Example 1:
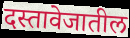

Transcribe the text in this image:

दस्तावेजातील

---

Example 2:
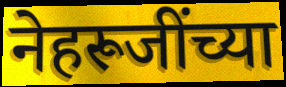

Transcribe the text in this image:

नेहरूजींच्या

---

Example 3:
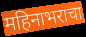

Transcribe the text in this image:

महिनाभराचा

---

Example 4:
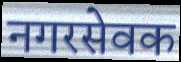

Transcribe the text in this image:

नगरसेवक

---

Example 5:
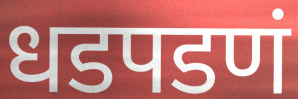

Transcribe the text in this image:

धडपडणं